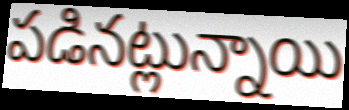
పడినట్లున్నాయి